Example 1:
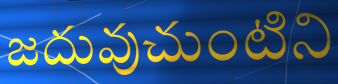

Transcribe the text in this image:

జదువుచుంటిని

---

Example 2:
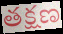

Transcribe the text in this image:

తక్షణ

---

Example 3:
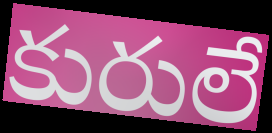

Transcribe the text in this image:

కురులే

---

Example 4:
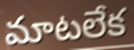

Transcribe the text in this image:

మాటలేక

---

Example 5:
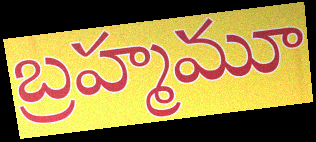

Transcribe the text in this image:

బ్రహ్మమూ